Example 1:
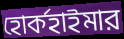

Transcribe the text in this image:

হোর্কহাইমার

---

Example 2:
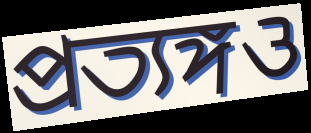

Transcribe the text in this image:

প্রত্যঙ্গও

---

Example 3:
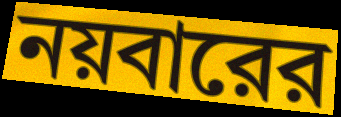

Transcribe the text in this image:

নয়বারের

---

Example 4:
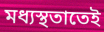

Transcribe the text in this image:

মধ্যস্থতাতেই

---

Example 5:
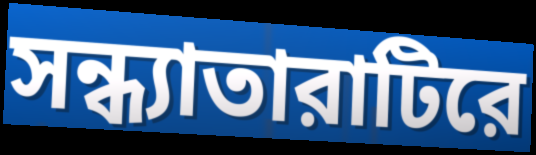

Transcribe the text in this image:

সন্ধ্যাতারাটিরে